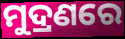
ମୁଦ୍ରଣରେ